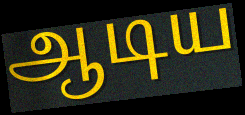
ஆடிய